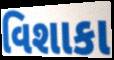
વિશાકા